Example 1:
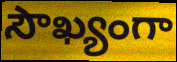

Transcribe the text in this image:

సౌఖ్యంగా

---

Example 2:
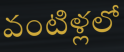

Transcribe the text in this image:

వంటిళ్లలో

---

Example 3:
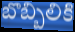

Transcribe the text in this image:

బొబ్బిలికి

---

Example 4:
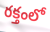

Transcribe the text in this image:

రక్తంలో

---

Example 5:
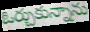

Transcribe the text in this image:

ఓర్చుకున్నాను